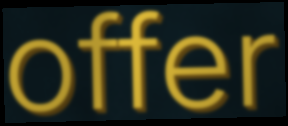
offer